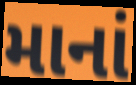
માનાં